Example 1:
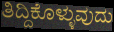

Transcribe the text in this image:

ತಿದ್ದಿಕೊಳ್ಳುವುದು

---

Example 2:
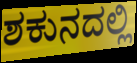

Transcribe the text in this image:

ಶಕುನದಲ್ಲಿ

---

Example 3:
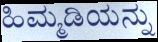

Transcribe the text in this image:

ಹಿಮ್ಮಡಿಯನ್ನು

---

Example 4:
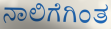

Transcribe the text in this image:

ನಾಲಿಗೆಗಿಂತ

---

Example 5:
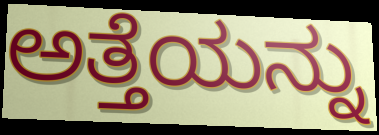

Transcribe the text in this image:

ಅತ್ತೆಯನ್ನು